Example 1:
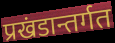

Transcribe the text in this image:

प्रखंडान्तर्गत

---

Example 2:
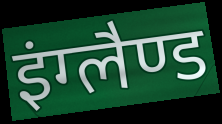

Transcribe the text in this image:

इंग्लैण्ड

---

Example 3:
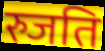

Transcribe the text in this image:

रुजति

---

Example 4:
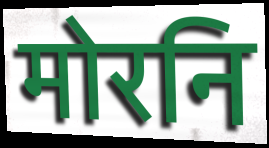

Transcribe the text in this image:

मोरनि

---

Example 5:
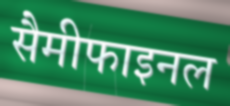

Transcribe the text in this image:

सैमीफाइनल